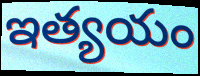
ఇత్యయం